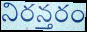
నిరన్తరం